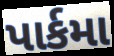
પાર્કમા